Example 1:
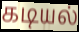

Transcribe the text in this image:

கடியல்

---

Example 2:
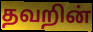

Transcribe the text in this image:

தவறின்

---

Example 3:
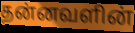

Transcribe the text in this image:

தன்னவளின்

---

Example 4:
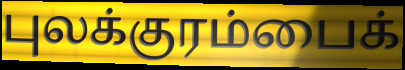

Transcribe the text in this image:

புலக்குரம்பைக்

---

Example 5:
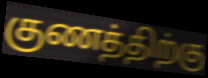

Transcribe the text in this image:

குணத்திற்கு